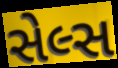
સેલ્સ